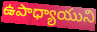
ఉపాధ్యాయుని